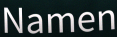
Namen